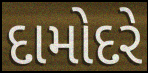
દામોદરે